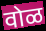
वोळ